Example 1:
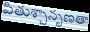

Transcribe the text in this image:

పితుశ్చానృణతా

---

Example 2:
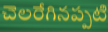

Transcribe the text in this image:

చెలరేగినప్పటి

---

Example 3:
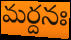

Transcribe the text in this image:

మర్దనః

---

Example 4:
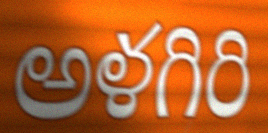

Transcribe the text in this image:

అళగిరి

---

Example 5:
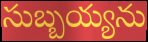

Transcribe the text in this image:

సుబ్బయ్యను